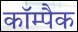
कॉम्पैक